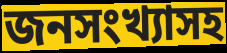
জনসংখ্যাসহ